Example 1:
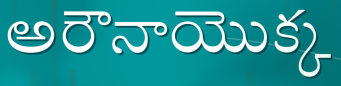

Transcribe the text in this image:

అరౌనాయొక్క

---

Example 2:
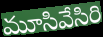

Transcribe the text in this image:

మూసివేసిరి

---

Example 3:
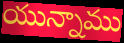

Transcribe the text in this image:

యున్నాము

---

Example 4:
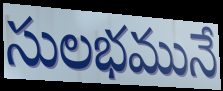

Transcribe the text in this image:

సులభమునే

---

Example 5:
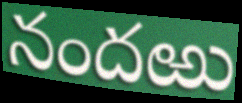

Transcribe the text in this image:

నందఱు